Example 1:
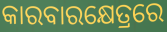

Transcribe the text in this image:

କାରବାରକ୍ଷେତ୍ରରେ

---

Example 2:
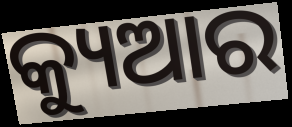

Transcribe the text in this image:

କ୍ୟୁଆର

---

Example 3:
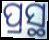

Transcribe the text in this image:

ପ୍ରସ୍ଥ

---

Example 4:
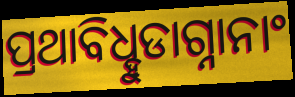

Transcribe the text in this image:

ପ୍ରଥାବିଧ୍ହୁଡାଗ୍ନାନାଂ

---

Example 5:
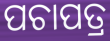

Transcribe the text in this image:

ପଚାପତ୍ର